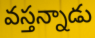
వస్తన్నాడు